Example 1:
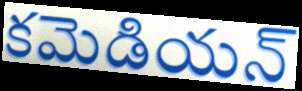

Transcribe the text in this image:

కమెడియన్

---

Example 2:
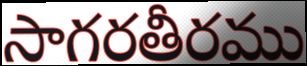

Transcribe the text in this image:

సాగరతీరము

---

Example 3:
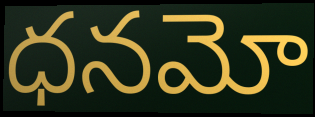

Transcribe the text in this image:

ధనమో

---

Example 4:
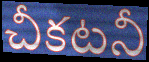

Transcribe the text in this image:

చీకటనీ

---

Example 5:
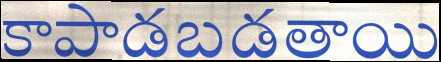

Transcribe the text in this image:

కాపాడబడతాయి